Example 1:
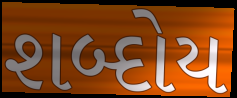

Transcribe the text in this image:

શબ્દોય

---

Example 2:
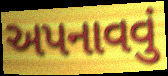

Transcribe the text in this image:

અપનાવવું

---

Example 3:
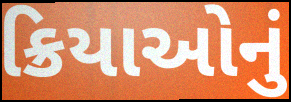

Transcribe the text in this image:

ક્રિયાઓનું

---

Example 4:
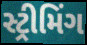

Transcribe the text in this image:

સ્ટ્રીમિંગ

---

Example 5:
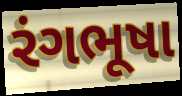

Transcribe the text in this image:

રંગભૂષા